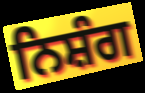
ਨਿਸ਼ੰਗ